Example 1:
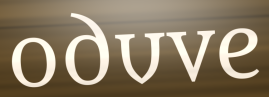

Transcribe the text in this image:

oduve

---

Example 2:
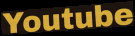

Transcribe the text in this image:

Youtube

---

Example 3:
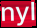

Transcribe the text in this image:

nyl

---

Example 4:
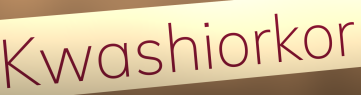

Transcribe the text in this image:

Kwashiorkor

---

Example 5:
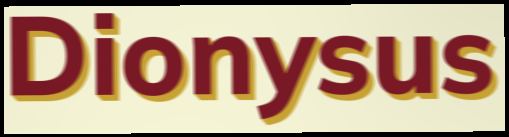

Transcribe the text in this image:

Dionysus